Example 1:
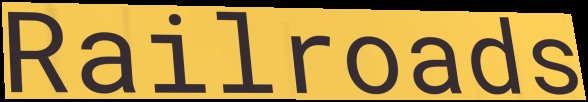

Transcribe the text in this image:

Railroads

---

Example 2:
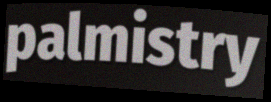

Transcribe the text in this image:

palmistry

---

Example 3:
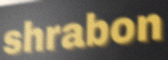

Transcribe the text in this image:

shrabon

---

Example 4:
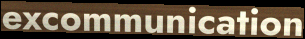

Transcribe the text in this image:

excommunication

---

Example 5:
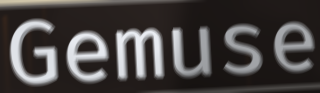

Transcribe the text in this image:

Gemuse